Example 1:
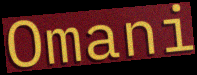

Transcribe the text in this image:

Omani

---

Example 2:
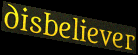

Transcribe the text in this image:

disbeliever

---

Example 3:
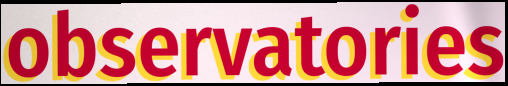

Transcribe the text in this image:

observatories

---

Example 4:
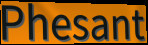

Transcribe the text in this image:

Phesant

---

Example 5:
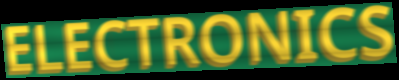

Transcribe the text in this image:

ELECTRONICS